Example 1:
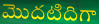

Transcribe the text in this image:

మొదటిదిగా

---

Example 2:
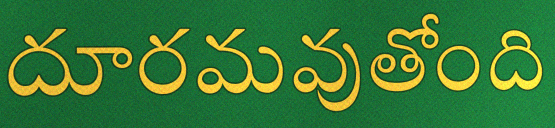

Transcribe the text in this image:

దూరమవుతోంది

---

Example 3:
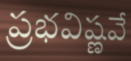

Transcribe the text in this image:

ప్రభవిష్ణవే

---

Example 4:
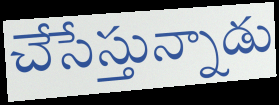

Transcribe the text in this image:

చేసేస్తున్నాడు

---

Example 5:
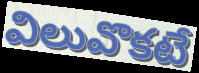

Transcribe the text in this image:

విలువొకటే